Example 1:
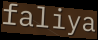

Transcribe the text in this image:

faliya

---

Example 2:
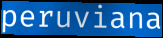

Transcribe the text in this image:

peruviana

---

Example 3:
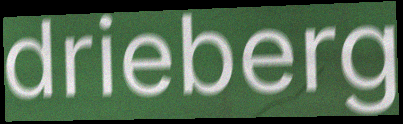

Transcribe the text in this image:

drieberg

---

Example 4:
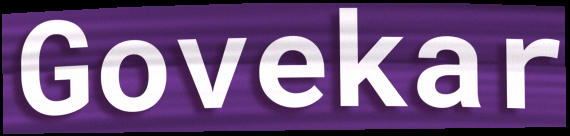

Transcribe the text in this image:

Govekar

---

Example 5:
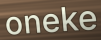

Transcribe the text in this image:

oneke